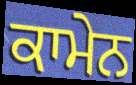
ਕਾਮੇਨ